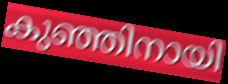
കുഞ്ഞിനായി